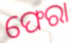
ଫେରା